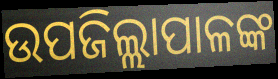
ଉପଜିଲ୍ଲାପାଳଙ୍କ